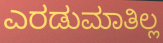
ಎರಡುಮಾತಿಲ್ಲ